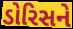
ડોરિસને